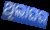
ଥିଲାଘର